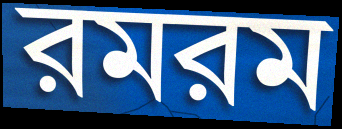
রমরম